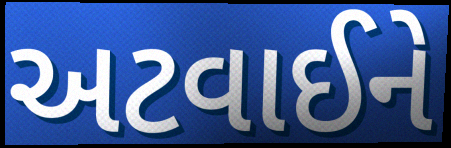
અટવાઈને